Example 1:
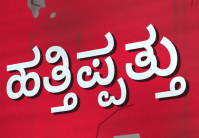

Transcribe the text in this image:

ಹತ್ತಿಪ್ಪತ್ತು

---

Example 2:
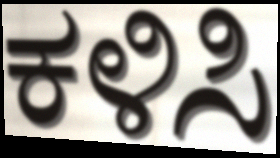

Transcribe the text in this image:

ಕಳಿಸಿ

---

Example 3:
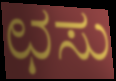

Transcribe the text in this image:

ಛಸು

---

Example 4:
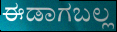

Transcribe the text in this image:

ಈಡಾಗಬಲ್ಲ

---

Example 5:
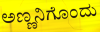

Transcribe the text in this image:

ಅಣ್ಣನಿಗೊಂದು